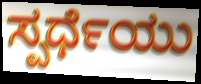
ಸ್ಪರ್ಧೆಯು